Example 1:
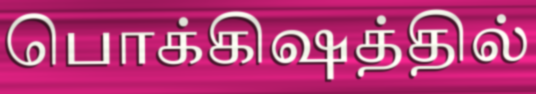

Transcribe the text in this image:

பொக்கிஷத்தில்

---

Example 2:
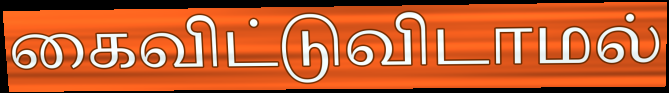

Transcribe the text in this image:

கைவிட்டுவிடாமல்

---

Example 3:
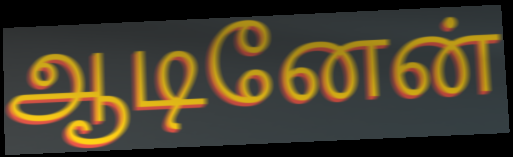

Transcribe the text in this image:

ஆடினேன்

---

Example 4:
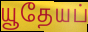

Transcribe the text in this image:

யூதேயப்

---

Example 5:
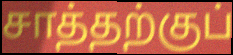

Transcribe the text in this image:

சாத்தற்குப்